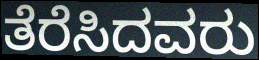
ತೆರೆಸಿದವರು